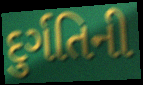
દુર્ગતિની